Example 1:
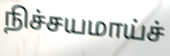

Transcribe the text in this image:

நிச்சயமாய்ச்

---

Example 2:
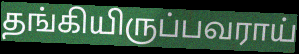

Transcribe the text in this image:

தங்கியிருப்பவராய்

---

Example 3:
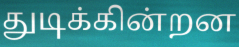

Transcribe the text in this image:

துடிக்கின்றன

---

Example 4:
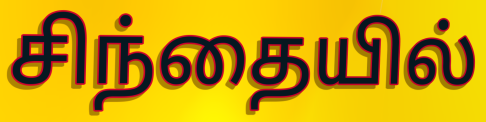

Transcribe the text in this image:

சிந்தையில்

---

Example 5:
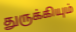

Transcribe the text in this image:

துருக்கியும்